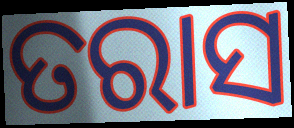
ତରାସ